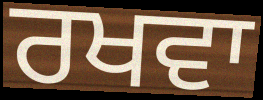
ਰਖਵਾ